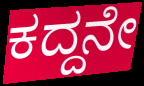
ಕದ್ದನೇ